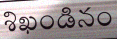
శిఖండినం